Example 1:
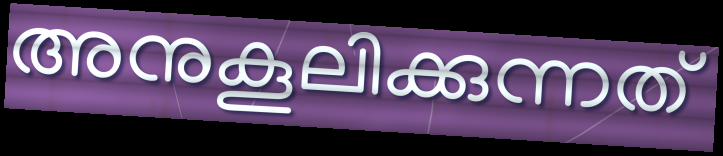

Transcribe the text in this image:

അനുകൂലിക്കുന്നത്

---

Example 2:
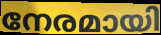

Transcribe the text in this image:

നേരമായി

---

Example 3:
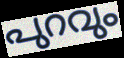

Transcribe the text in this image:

പുറവും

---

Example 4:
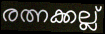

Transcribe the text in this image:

രത്നക്കല്ല്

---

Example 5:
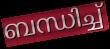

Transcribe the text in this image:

ബന്ധിച്ച്